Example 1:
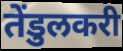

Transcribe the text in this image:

तेंडुलकरी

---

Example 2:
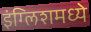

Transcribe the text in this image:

इंग्लिशमध्ये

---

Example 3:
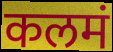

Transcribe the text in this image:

कलमं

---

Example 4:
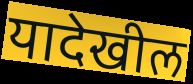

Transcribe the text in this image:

यादेखील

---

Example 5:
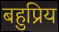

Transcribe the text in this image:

बहुप्रिय